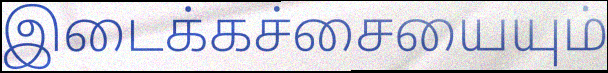
இடைக்கச்சையையும்